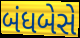
બંધબેસે